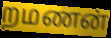
றமணன்